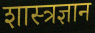
शास्त्रज्ञान